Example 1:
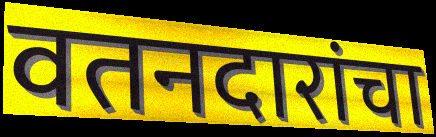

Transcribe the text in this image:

वतनदारांचा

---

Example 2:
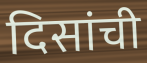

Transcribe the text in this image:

दिसांची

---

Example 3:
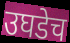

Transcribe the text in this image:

उघडेच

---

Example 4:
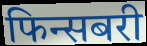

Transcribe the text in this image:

फिन्सबरी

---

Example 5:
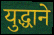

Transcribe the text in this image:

युद्धाने